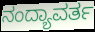
ನಂದ್ಯಾವರ್ತ